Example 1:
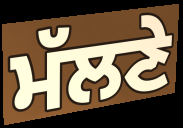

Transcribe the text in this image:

ਮੱਲਣੇ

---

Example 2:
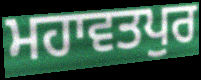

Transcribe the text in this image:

ਮਹਾਵਤਪੁਰ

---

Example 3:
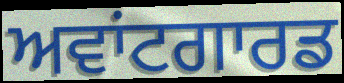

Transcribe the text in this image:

ਅਵਾਂਟਗਾਰਡ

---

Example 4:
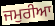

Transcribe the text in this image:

ਜਮੁਰੀਆ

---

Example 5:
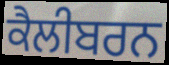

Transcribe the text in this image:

ਕੈਲੀਬਰਨ